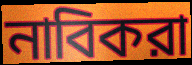
নাবিকরা